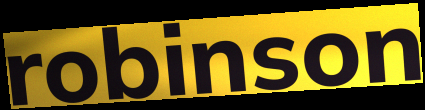
robinson